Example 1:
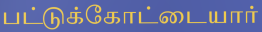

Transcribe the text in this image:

பட்டுக்கோட்டையார்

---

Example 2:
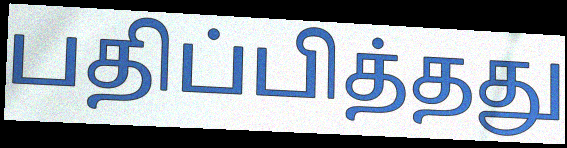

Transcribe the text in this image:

பதிப்பித்தது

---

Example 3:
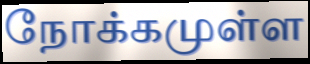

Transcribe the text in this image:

நோக்கமுள்ள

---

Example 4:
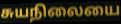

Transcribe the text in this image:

சுயநிலையை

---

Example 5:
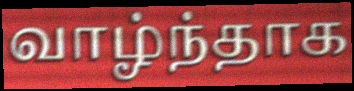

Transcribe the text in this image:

வாழ்ந்தாக